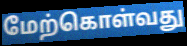
மேற்கொள்வது